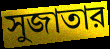
সুজাতার